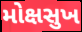
મોક્ષસુખ